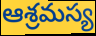
ఆశ్రమస్య